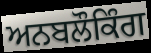
ਅਨਬਲੌਕਿੰਗ